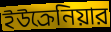
ইউক্রেনিয়ার